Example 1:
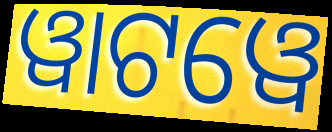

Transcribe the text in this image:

ୱାଟୱେ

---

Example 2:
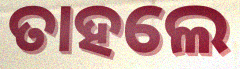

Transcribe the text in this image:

ତାହଲେ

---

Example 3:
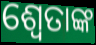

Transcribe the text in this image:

ଶ୍ୱେତାଙ୍କ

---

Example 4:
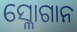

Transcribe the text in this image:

ସ୍ଳୋଗାନ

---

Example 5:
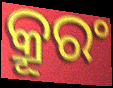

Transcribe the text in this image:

କ୍ରୂରଂ